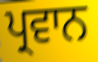
ਪ੍ਰਵਾਨ